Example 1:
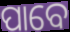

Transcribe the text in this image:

ପାବେ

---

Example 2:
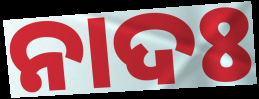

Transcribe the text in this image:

ନାଦଃ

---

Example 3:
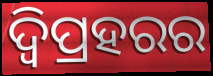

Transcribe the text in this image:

ଦ୍ୱିପ୍ରହରର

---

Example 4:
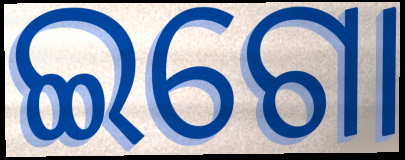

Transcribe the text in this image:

ଇଗୋ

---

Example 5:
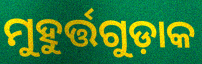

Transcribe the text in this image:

ମୁହୁର୍ତ୍ତଗୁଡ଼ାକ